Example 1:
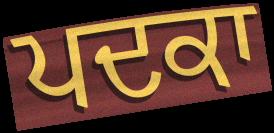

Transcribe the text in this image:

ਪਦਕਾ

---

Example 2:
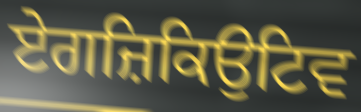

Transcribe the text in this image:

ਏਗਜ਼ਿਕਿਉਟਿਵ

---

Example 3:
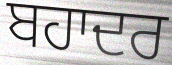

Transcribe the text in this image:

ਬਹਾਦਰ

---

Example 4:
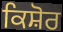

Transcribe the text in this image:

ਕਿਸ਼ੋਰ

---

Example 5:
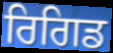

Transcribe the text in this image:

ਰਿਗਿਡ